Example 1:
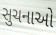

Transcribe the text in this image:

સુચનાઓ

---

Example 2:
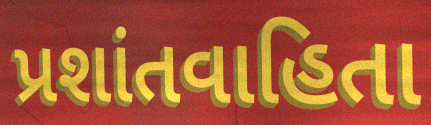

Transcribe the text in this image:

પ્રશાંતવાહિતા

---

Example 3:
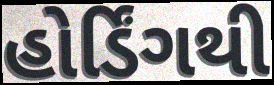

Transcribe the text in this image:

હોર્ડિંગથી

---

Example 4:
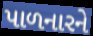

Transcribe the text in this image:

પાળનારને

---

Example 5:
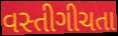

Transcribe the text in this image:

વસ્તીગીચતા